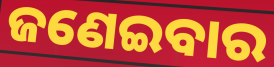
ଜଣେଇବାର